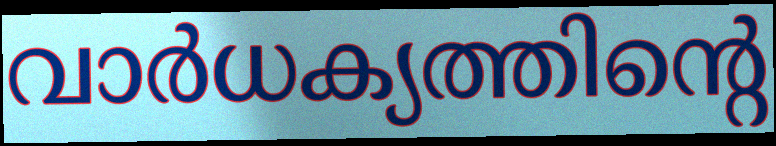
വാർധക്യത്തിന്റെ